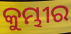
କୁମ୍ଭୀର